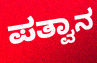
ಪತ್ವಾನ